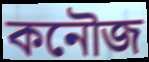
কনৌজ